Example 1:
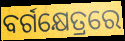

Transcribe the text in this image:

ବର୍ଗକ୍ଷେତ୍ରରେ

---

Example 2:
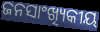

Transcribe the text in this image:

ଜନସାଂଖ୍ୟିକୀୟ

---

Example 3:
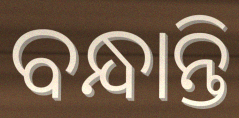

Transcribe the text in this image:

ବନ୍ଧାନ୍ତି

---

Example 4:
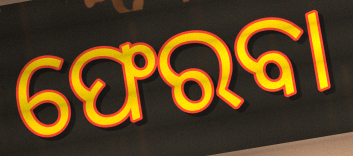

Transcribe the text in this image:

ଫେରବା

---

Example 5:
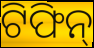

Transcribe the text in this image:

ଟିଫିନ୍